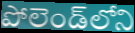
పోలెండ్‌లోని